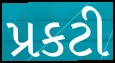
પ્રકટી